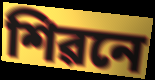
শিৱনে